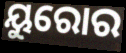
ୟୁରୋର